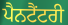
ਪੈਨਟੈਂਟਰੀ